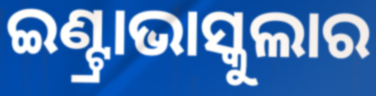
ଇଣ୍ଟ୍ରାଭାସ୍କୁଲାର